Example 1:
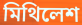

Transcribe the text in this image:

মিথিলেশ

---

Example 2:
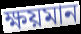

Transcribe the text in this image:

ক্ষয়মান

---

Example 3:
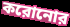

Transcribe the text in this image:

করোনোর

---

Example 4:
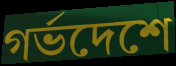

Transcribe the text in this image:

গর্ভদেশে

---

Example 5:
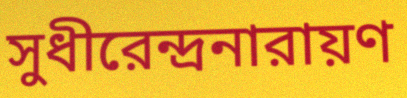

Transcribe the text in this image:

সুধীরেন্দ্রনারায়ণ